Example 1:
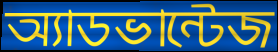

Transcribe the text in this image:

অ্যাডভান্টেজ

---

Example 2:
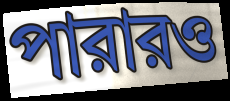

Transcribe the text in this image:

পারারও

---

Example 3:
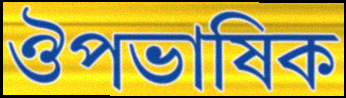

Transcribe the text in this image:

ঔপভাষিক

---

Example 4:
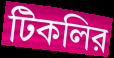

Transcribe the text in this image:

টিকলির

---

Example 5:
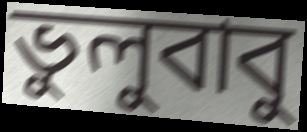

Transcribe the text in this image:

ভুলুবাবু